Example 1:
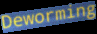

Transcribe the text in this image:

Deworming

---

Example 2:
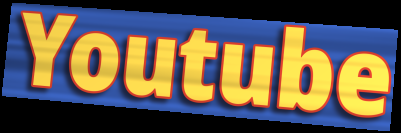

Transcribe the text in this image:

Youtube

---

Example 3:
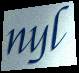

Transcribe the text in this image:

nyl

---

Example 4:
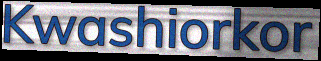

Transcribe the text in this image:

Kwashiorkor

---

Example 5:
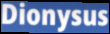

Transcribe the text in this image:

Dionysus